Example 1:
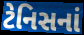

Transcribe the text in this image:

ટેનિસનાં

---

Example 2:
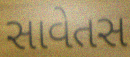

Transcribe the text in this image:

સાવેતસ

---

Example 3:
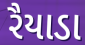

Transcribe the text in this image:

રૈયાડા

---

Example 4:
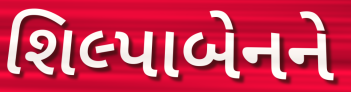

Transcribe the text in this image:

શિલ્પાબેનને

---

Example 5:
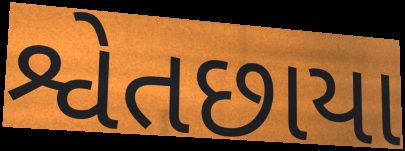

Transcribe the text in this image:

શ્વેતછાયા